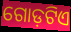
ଗୋଡ଼ଟିଏ